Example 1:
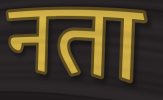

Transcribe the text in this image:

नता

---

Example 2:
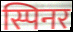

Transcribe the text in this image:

स्पिनर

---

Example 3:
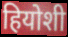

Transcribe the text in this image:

हियोशी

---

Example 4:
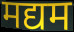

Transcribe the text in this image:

मद्यम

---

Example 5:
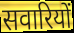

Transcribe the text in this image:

सवारियों